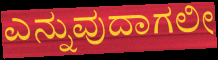
ಎನ್ನುವುದಾಗಲೀ